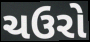
ચઉરો